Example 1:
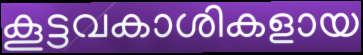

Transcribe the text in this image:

കൂട്ടവകാശികളായ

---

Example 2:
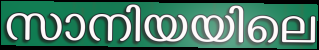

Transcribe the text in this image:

സാനിയയിലെ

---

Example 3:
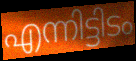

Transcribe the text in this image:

എന്നിട്ടിടം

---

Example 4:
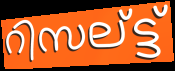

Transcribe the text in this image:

റിസല്ട്ട്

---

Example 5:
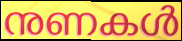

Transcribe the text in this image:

നുണകൾ